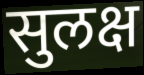
सुलक्ष